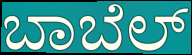
ಬಾಬೆಲ್